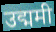
उद्ममी